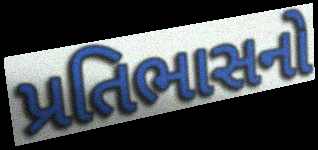
પ્રતિભાસનો